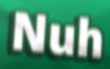
Nuh